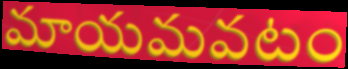
మాయమవటం